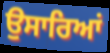
ਉਸਾਰਿਆਂ